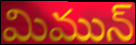
మిమున్